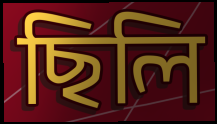
ছিলি